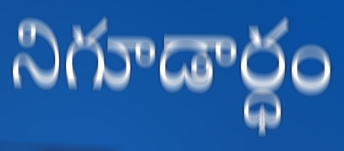
నిగూడార్ధం